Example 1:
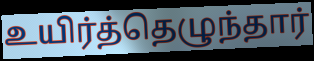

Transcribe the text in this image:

உயிர்த்தெழுந்தார்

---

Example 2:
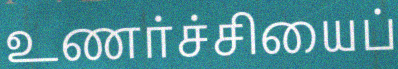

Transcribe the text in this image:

உணர்ச்சியைப்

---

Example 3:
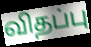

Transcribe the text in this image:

விதப்பு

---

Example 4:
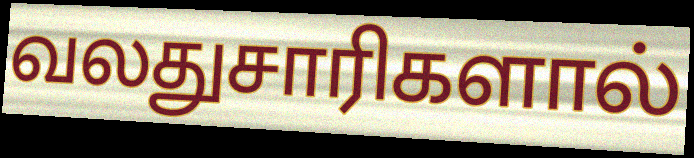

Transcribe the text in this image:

வலதுசாரிகளால்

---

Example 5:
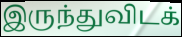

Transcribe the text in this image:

இருந்துவிடக்